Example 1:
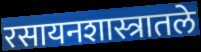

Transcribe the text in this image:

रसायनशास्त्रातले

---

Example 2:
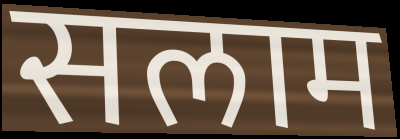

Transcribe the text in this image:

सलाम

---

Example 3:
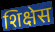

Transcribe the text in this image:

शिक्षेस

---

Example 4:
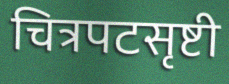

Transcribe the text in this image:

चित्रपटसृष्टी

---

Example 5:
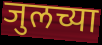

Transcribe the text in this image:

जुलच्या